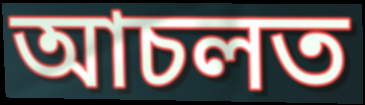
আচলত